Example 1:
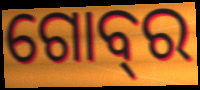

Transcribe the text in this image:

ଗୋବ୍‌ର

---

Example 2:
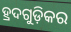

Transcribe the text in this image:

ହ୍ରଦଗୁଡ଼ିକର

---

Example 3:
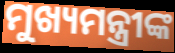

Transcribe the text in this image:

ମୁଖ୍ୟମନ୍ତ୍ରୀଙ୍କ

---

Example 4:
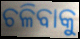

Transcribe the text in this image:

ଚଳିବାକୁ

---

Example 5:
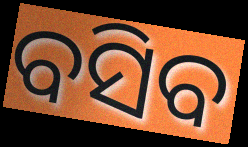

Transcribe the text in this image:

ବସିବ